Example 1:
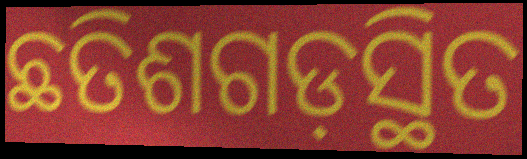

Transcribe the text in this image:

ଛତିଶଗଡ଼ସ୍ଥିତ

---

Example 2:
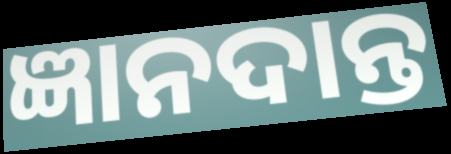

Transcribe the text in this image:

ଜ୍ଞାନଦାନ୍ତ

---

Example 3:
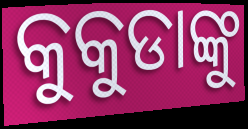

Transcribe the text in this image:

କୁକୁଡାଙ୍କୁ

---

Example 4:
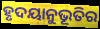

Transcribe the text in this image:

ହୃଦୟାନୁଭୂତିର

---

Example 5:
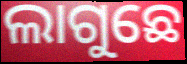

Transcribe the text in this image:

ଲାଗୁଛେ